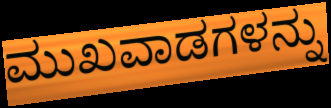
ಮುಖವಾಡಗಳನ್ನು